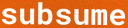
subsume